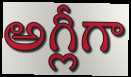
అగ్లీగా